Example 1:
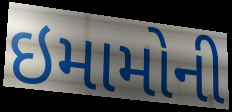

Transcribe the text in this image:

ઇમામોની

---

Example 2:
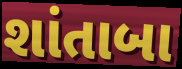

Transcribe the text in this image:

શાંતાબા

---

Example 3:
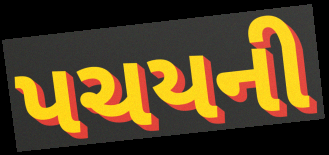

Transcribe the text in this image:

પચયની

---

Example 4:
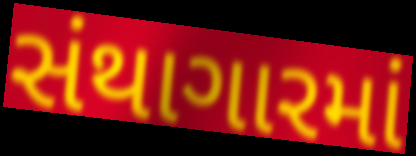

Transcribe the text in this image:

સંથાગારમાં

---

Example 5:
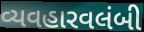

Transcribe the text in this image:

વ્યવહારવલંબી